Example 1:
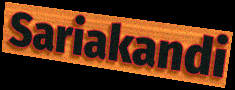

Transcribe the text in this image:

Sariakandi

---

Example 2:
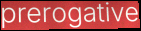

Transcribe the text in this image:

prerogative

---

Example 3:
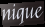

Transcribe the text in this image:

nique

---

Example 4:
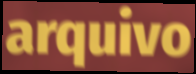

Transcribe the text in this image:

arquivo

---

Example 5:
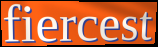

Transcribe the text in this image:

fiercest